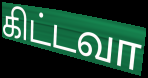
கிட்டவா